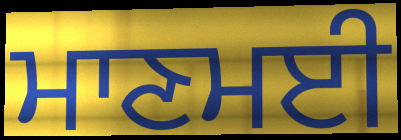
ਮਾਣਮਈ